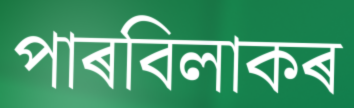
পাৰবিলাকৰ